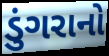
ડુંગરાનો